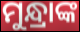
ମୁନ୍ଧ୍ରାଙ୍କ